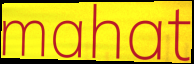
mahat